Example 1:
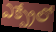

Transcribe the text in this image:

ఎక్స్రేలో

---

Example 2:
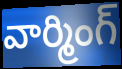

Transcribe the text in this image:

వార్మింగ్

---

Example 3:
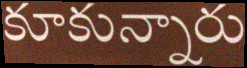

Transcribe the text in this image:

కూకున్నారు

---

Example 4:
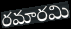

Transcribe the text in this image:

రమారమి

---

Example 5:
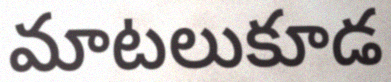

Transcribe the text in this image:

మాటలుకూడ